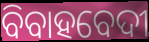
ବିବାହବେଦୀ